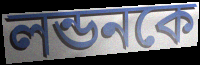
লন্ডনকে